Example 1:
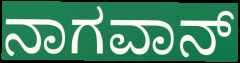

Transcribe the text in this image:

ನಾಗವಾನ್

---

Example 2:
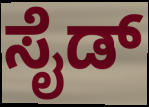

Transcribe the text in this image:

ಸೈಡ್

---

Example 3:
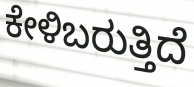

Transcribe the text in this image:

ಕೇಳಿಬರುತ್ತಿದೆ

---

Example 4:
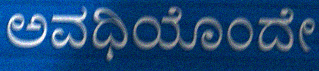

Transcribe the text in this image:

ಅವಧಿಯೊಂದೇ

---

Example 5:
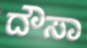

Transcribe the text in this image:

ದೌಸಾ